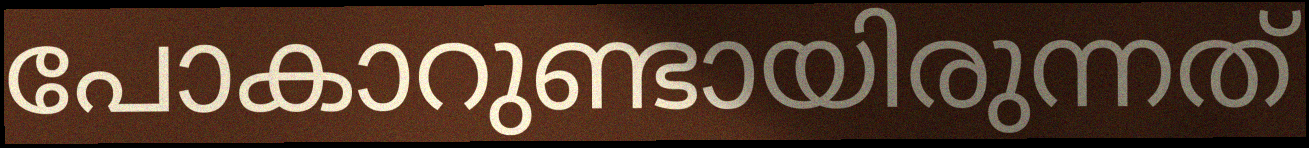
പോകാറുണ്ടായിരുന്നത്